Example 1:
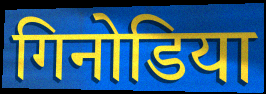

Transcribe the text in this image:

गिनोडिया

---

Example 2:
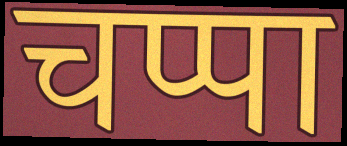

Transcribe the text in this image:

चप्पा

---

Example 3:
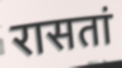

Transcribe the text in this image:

रासतां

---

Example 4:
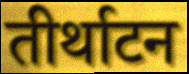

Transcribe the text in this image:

तीर्थाटन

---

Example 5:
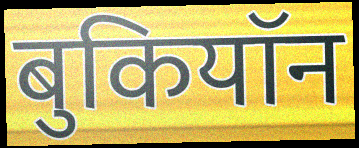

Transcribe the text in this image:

बुकियॉन